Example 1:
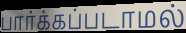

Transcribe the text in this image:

பார்க்கப்படாமல்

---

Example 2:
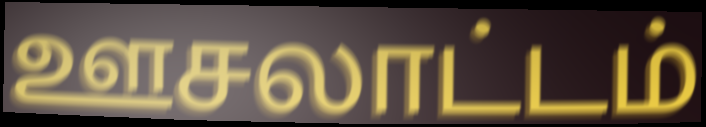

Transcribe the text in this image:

ஊசலாட்டம்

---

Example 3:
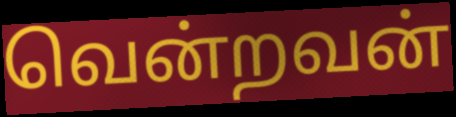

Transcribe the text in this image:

வென்றவன்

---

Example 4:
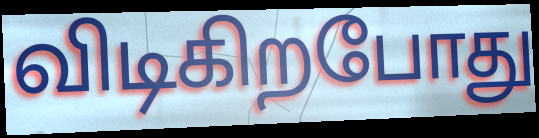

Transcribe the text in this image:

விடிகிறபோது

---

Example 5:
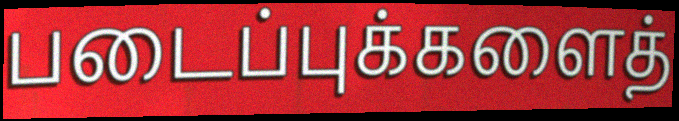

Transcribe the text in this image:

படைப்புக்களைத்